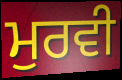
ਮੁਰਵੀ